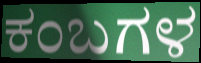
ಕಂಬಗಳ